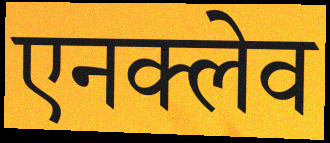
एनक्लेव